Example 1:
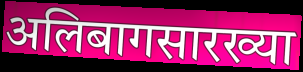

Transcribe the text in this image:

अलिबागसारख्या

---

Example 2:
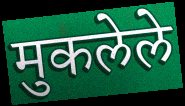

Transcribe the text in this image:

मुकलेले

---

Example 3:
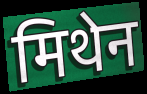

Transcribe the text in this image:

मिथेन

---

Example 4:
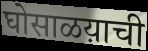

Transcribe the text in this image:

घोसाळय़ाची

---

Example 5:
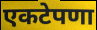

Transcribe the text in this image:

एकटेपणा